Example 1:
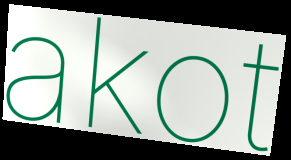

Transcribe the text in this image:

akot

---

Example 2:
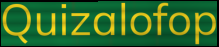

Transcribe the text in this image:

Quizalofop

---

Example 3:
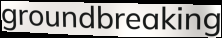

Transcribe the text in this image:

groundbreaking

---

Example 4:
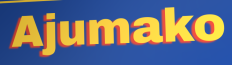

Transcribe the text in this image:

Ajumako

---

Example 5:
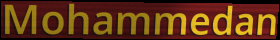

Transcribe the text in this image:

Mohammedan